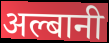
अल्बानी